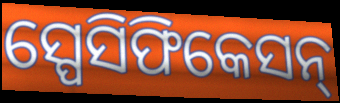
ସ୍ପେସିଫିକେସନ୍